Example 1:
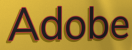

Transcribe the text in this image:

Adobe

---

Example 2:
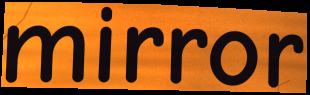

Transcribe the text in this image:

mirror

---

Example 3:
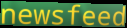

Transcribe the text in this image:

newsfeed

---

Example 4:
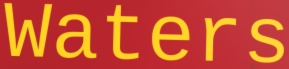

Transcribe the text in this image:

Waters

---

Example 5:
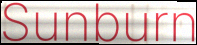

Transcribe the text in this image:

Sunburn